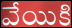
వేయికి